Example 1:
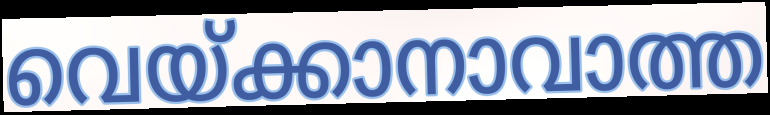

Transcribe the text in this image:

വെയ്ക്കാനാവാത്ത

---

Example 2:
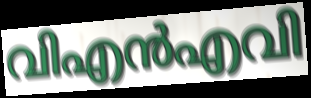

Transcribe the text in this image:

വിഎൻഎവി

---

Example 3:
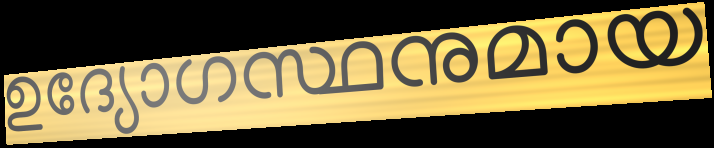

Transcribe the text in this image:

ഉദ്യോഗസ്ഥനുമായ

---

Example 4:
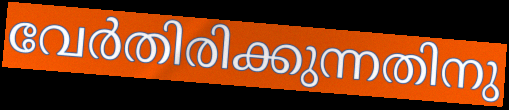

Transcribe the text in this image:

വേർതിരിക്കുന്നതിനു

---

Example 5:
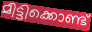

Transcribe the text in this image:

മീട്ടിക്കൊണ്ട്